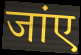
जांए